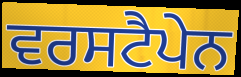
ਵਰਸਟੈਪੇਨ